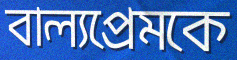
বাল্যপ্রেমকে